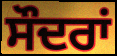
ਸੌਦਰਾਂ